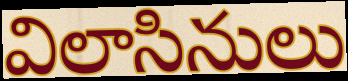
విలాసినులు